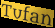
Tufan